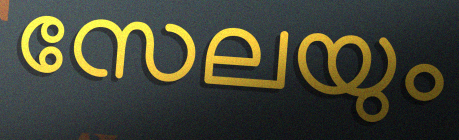
സേലയും